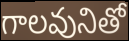
గాలవునితో